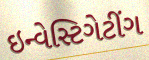
ઇન્વેસ્ટિગેટીંગ